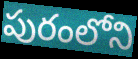
పురంలోని